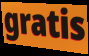
gratis